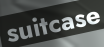
suitcase